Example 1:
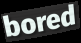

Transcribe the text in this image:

bored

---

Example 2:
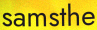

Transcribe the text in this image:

samsthe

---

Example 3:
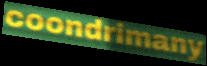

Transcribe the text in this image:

coondrimany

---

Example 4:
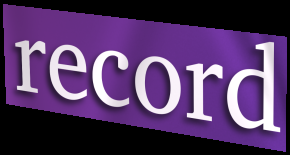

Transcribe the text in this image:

record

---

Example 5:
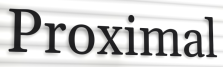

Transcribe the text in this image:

Proximal